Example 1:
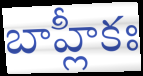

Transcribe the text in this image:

బాహ్లీకః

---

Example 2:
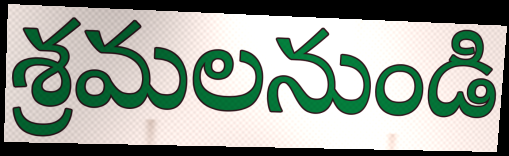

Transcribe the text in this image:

శ్రమలనుండి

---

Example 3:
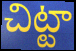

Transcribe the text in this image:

చిట్టా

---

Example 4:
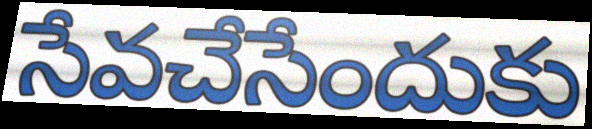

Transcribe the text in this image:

సేవచేసేందుకు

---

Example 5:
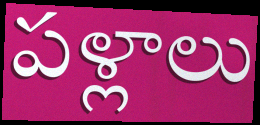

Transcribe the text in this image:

పళ్లాలు